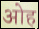
ओह